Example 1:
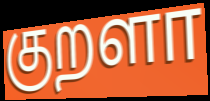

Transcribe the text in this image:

குறளா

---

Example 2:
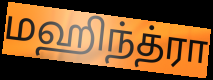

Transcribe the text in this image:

மஹிந்த்ரா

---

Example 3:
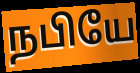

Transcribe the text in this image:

நபியே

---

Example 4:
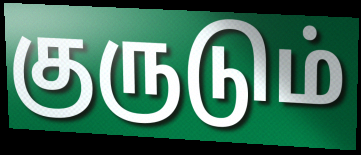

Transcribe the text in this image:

குருடும்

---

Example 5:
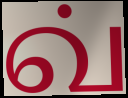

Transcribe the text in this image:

வ்